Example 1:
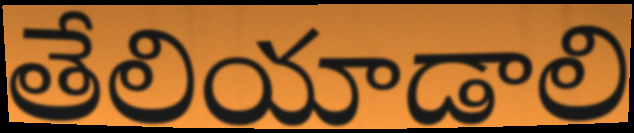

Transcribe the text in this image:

తేలియాడాలి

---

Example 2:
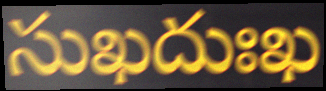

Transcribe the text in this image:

సుఖదుఃఖ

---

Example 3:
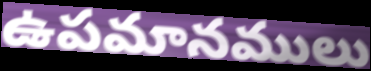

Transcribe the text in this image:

ఉపమానములు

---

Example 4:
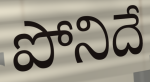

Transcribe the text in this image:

పోనిదే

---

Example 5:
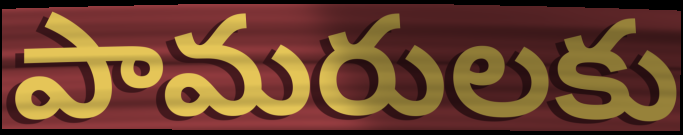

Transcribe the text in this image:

పామరులకు